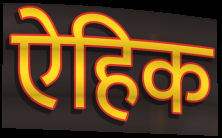
ऐहिक